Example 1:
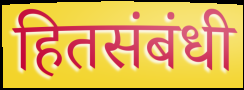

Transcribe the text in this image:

हितसंबंधी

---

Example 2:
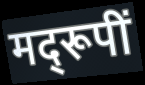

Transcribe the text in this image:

मद्‌रूपीं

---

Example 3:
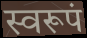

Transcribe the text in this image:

स्वरूपं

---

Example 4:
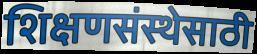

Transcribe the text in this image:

शिक्षणसंस्थेसाठी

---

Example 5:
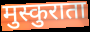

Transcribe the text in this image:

मुस्कुराता